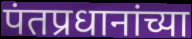
पंतप्रधानांच्या